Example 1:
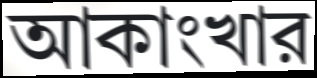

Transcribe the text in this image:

আকাংখার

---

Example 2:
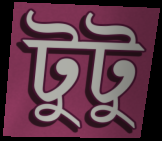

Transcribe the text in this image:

টুটু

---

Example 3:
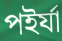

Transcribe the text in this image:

পইর্যা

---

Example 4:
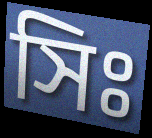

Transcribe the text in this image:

সিঃ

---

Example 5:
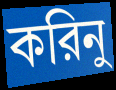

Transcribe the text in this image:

করিনু